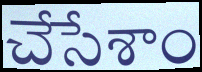
చేసేశాం